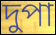
দুপা